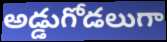
అడ్డుగోడలుగా